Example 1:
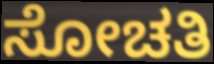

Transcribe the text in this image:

ಸೋಚತಿ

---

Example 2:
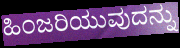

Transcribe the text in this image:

ಹಿಂಜರಿಯುವುದನ್ನು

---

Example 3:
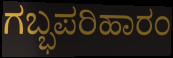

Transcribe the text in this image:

ಗಬ್ಭಪರಿಹಾರಂ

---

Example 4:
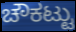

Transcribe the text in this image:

ಚೌಕಟ್ಟು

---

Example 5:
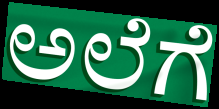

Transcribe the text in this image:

ಅಲೆಗೆ